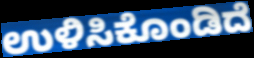
ಉಳಿಸಿಕೊಂಡಿದೆ